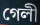
গেলী